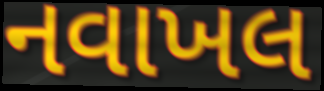
નવાખલ